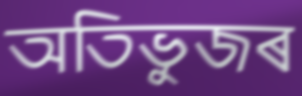
অতিভুজৰ